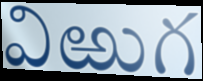
విఱుగ